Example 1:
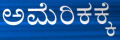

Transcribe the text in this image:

ಅಮೆರಿಕಕ್ಕೆ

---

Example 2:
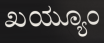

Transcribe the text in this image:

ಖಯ್ಯೂಂ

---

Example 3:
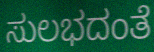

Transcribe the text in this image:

ಸುಲಭದಂತೆ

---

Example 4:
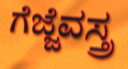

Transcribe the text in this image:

ಗೆಜ್ಜೆವಸ್ತ್ರ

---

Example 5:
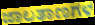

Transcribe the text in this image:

ಜಾಲತಾಣಗಳ